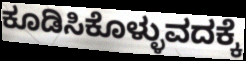
ಕೂಡಿಸಿಕೊಳ್ಳುವದಕ್ಕೆ